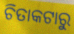
ଚିତାକଟାରୁ